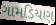
ગામડિયણ